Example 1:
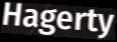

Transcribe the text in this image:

Hagerty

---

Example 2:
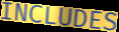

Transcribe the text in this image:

INCLUDES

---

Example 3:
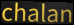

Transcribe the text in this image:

chalan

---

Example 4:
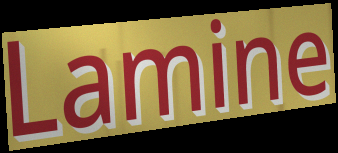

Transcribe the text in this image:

Lamine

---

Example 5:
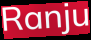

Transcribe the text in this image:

Ranju